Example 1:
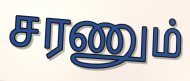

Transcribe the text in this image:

சரணும்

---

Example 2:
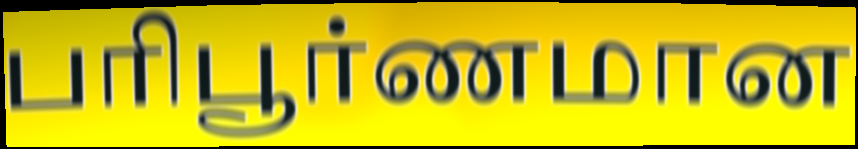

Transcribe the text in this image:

பரிபூர்ணமான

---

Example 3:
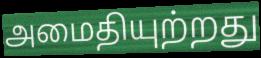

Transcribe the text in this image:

அமைதியுற்றது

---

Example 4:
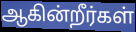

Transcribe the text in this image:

ஆகின்றீர்கள்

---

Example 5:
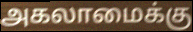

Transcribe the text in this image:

அகலாமைக்கு